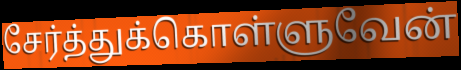
சேர்த்துக்கொள்ளுவேன்